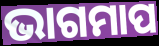
ଭାଗମାପ